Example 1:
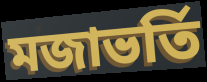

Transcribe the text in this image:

মজাভর্তি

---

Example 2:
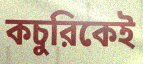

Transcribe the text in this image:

কচুরিকেই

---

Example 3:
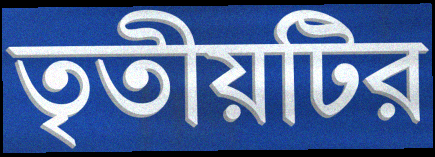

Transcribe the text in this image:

তৃতীয়টির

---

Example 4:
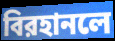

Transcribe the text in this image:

বিরহানলে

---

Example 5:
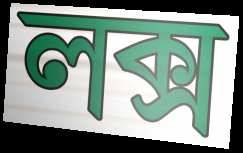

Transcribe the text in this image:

লক্স